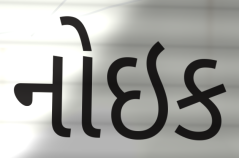
નોઇક